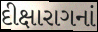
દીક્ષારાગનાં